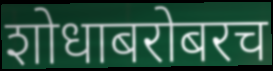
शोधाबरोबरच